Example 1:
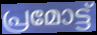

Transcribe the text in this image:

പ്രമോട്ട്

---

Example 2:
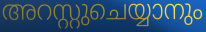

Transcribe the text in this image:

അറസ്റ്റുചെയ്യാനും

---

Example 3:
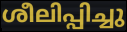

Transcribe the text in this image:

ശീലിപ്പിച്ചു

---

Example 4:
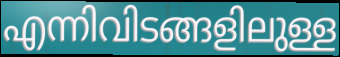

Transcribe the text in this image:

എന്നിവിടങ്ങളിലുള്ള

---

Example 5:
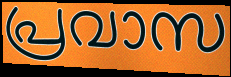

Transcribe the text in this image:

പ്രവാസ